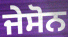
ਜੇਸੋਨ